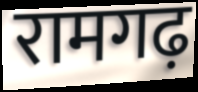
रामगढ़